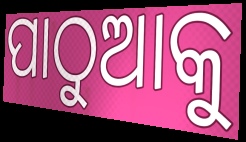
ପାଠୁଆକୁ